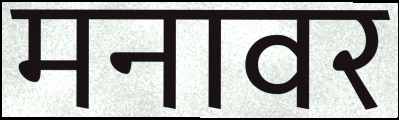
मनावर